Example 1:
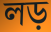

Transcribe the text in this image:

লড়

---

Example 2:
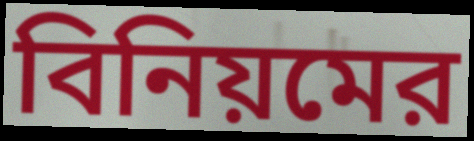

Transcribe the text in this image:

বিনিয়মের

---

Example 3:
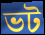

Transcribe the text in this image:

ভট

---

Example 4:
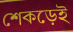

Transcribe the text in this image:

শেকড়েই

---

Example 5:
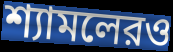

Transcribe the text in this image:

শ্যামলেরও